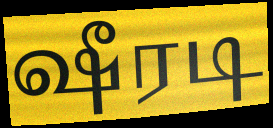
ஷீரடி